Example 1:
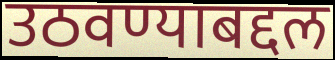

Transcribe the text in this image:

उठवण्याबद्दल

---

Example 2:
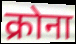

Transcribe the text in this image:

क्रोना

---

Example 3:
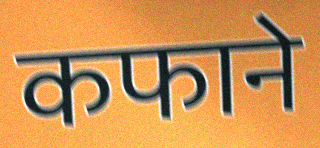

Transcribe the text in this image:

कफाने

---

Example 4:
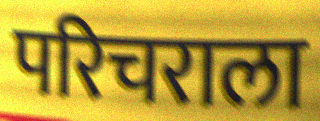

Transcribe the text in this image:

परिचराला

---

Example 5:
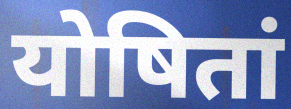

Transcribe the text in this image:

योषितां